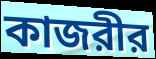
কাজরীর